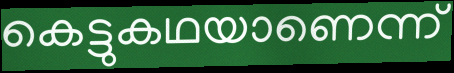
കെട്ടുകഥയാണെന്ന്